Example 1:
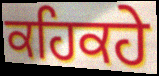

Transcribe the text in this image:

ਕਹਿਕਹੇ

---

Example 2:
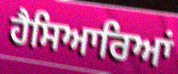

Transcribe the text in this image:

ਹੈਸਿਆਰਿਆਂ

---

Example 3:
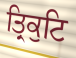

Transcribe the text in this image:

ਤ੍ਰਿਕੁਟਿ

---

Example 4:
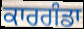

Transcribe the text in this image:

ਕਾਰਗੰਡਾ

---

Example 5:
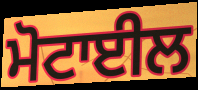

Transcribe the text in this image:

ਮੋਟਾਈਲ